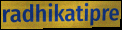
radhikatipre